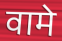
वामे